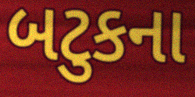
બટુકના